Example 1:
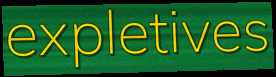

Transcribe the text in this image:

expletives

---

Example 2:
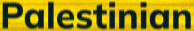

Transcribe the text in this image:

Palestinian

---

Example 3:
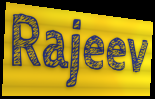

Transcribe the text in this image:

Rajeev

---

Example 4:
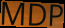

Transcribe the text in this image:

MDP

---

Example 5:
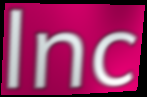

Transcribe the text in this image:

Inc